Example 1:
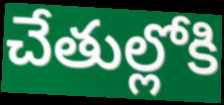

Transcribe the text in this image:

చేతుల్లోకి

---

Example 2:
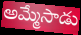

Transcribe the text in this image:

అమ్మేసాడు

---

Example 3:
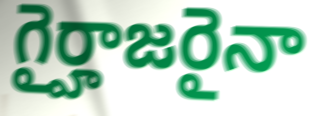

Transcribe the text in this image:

గైర్హాజరైనా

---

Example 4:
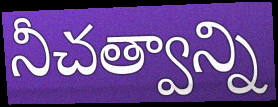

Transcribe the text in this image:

నీచత్వాన్ని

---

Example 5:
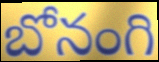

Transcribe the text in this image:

బోనంగి